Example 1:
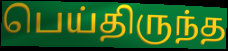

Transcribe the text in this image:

பெய்திருந்த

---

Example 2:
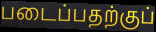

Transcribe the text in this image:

படைப்பதற்குப்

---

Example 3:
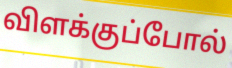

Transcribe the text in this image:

விளக்குப்போல்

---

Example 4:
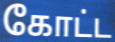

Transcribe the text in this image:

கோட்ட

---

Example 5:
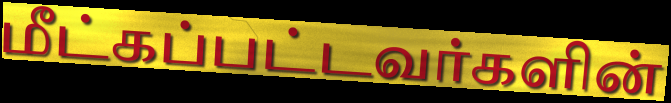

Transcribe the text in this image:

மீட்கப்பட்டவர்களின்